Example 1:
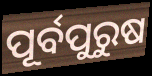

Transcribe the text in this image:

ପୂର୍ବପୁରୁଷ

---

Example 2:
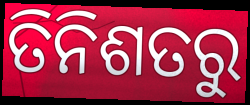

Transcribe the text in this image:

ତିନିଶତରୁ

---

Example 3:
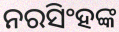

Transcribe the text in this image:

ନରସିଂହଙ୍କ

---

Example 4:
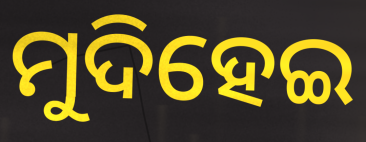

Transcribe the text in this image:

ମୁଦିହେଇ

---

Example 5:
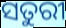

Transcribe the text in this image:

ସତୁରୀ